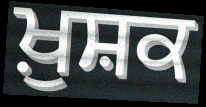
ਖ਼ੁਸ਼ਕ